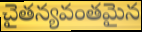
చైతన్యవంతమైన